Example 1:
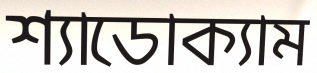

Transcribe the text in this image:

শ্যাডোক্যাম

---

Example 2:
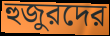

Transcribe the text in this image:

হুজুরদের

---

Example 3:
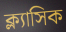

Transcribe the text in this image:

ক্ল্যাসিক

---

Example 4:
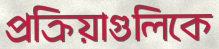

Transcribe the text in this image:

প্রক্রিয়াগুলিকে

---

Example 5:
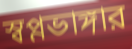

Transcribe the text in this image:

স্বপ্নভাঙ্গার